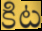
కిట